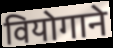
वियोगाने